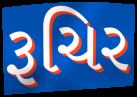
રૂચિર